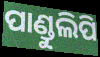
ପାଣ୍ଡୁଲିପି